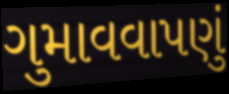
ગુમાવવાપણું